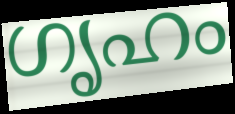
ഗൃഹം